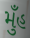
મુઁહ